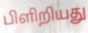
பிளிறியது